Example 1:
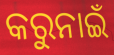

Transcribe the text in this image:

କରୁନାଇଁ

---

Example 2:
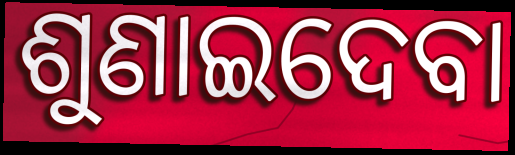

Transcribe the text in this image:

ଶୁଣାଇଦେବା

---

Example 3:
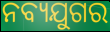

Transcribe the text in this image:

ନବ୍ୟଯୁଗର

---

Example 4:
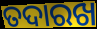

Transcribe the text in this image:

ତଦାରଖ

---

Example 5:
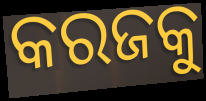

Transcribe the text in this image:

କରଜକୁ